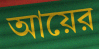
আয়ের